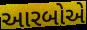
આરબોએ